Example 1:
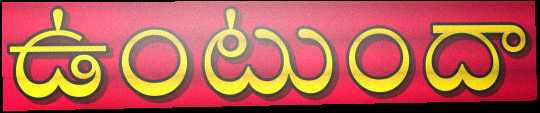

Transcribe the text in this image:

ఉంటుందా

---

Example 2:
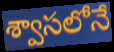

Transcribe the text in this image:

శ్వాసలోనే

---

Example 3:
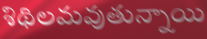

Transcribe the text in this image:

శిథిలమవుతున్నాయి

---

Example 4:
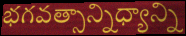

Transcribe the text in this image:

భగవత్సాన్నిధ్యాన్ని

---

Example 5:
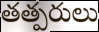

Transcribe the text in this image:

తత్పరులు